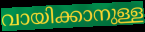
വായിക്കാനുള്ള